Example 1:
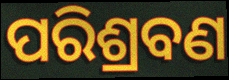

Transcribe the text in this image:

ପରିଶ୍ରବଣ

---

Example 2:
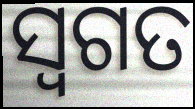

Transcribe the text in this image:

ସ୍ଵଗତ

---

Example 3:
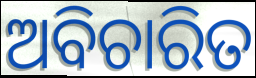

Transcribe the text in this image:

ଅବିଚାରିତ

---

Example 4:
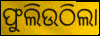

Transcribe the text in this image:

ଫୁଲିଉଠିଲା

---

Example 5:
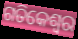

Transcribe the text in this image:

ଗତିକେଶ୍ବର